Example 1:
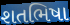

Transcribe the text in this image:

શતભિષા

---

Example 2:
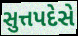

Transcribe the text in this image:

સુત્તપદેસે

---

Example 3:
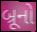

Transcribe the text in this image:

બ્રૂનો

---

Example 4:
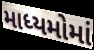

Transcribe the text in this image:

માધ્યમોમાં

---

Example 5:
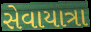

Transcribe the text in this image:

સેવાયાત્રા